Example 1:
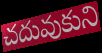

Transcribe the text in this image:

చదువుకుని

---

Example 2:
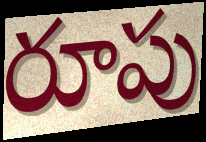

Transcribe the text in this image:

రూపు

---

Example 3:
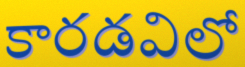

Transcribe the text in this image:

కారడవిలో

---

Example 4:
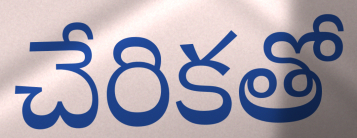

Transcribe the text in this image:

చేరికతో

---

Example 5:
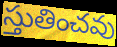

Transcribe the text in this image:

స్తుతించవు